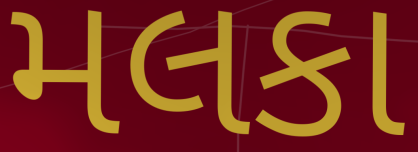
મલકા